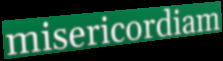
misericordiam